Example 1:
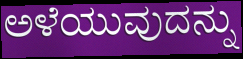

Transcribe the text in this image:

ಅಳೆಯುವುದನ್ನು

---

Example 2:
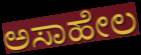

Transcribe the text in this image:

ಅಸಾಹೇಲ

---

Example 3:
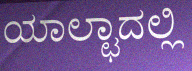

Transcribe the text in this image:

ಯಾಲ್ಟಾದಲ್ಲಿ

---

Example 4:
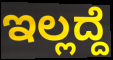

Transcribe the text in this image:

ಇಲ್ಲದ್ದೆ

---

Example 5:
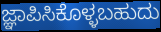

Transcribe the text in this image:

ಜ್ಞಾಪಿಸಿಕೊಳ್ಳಬಹುದು